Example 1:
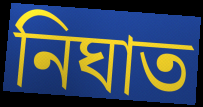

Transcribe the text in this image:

নিঘাত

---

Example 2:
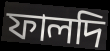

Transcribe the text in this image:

ফালদি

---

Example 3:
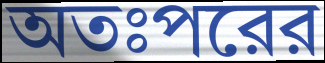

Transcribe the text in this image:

অতঃপরের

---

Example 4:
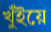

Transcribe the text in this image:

খুঁইয়ে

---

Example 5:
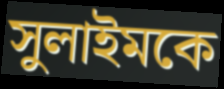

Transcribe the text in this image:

সুলাইমকে